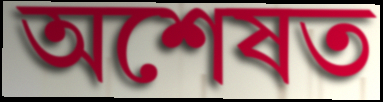
অশেষত